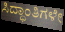
ಸಿದ್ಧಾಂತಿಗಳೇ